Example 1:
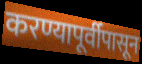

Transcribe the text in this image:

करण्यापूर्वीपासून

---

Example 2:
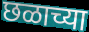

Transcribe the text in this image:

छळाच्या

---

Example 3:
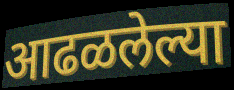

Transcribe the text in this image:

आढळलेल्या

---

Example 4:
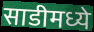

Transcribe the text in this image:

साडीमध्ये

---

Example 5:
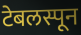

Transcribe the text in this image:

टेबलस्पून